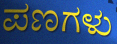
ಪಣಗಳು